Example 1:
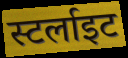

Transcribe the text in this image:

स्टर्लाइट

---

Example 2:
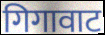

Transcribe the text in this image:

गिगावाट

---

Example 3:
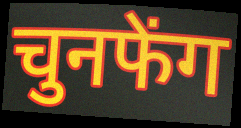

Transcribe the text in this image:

चुनफेंग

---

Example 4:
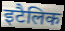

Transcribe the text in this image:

इटैलिक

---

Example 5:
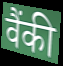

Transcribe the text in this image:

वैंकी